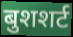
बुशशर्ट